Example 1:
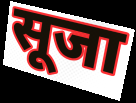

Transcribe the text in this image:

सूजा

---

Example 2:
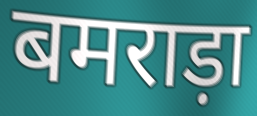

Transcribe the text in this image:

बमराड़ा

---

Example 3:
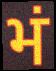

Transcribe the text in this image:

भं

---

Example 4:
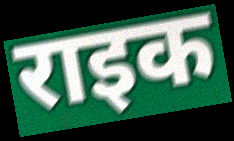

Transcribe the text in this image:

राइक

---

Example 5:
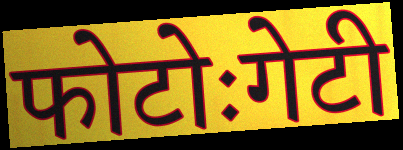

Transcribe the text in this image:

फोटोःगेटी